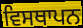
ਵਿਸਥਾਪਨ